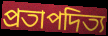
প্ৰতাপদিত্য